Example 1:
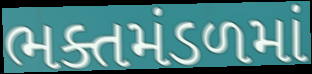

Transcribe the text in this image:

ભક્તમંડળમાં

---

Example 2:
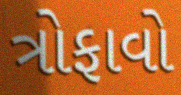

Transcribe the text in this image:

ત્રોફાવો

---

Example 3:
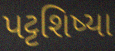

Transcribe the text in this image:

પટ્ટશિષ્યા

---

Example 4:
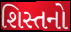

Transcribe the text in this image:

શિસ્તનો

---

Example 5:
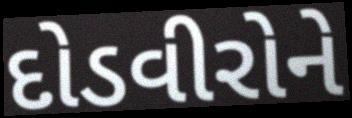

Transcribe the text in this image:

દોડવીરોને